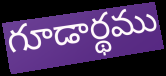
గూడార్థము